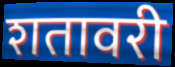
शतावरी